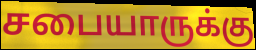
சபையாருக்கு